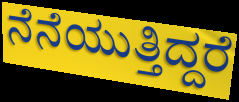
ನೆನೆಯುತ್ತಿದ್ದರೆ